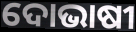
ଦୋଭାଷୀ